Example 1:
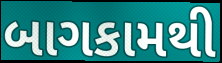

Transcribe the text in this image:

બાગકામથી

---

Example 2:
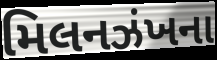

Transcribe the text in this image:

મિલનઝંખના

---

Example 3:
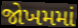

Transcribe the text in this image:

જોખમમાં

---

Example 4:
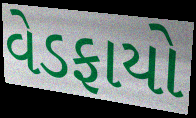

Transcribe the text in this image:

વેડફાયો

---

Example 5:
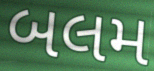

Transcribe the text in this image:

બલમ